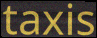
taxis